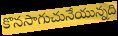
కొనసాగుచునేయున్నది